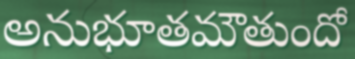
అనుభూతమౌతుందో